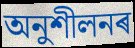
অনুশীলনৰ